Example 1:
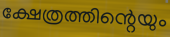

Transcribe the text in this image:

ക്ഷേത്രത്തിന്റെയും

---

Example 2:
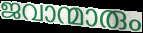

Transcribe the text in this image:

ജവാന്മാരും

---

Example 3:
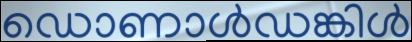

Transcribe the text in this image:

ഡൊണാൾഡങ്കിൾ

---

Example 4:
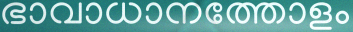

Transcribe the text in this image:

ഭാവാധാനത്തോളം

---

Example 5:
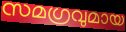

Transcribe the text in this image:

സമഗ്രവുമായ